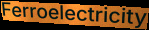
Ferroelectricity